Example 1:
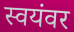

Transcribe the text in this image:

स्वयंवर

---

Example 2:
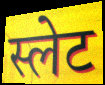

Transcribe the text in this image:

स्लेट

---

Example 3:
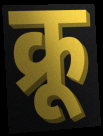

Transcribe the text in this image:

क्रू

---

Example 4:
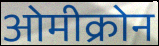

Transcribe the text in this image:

ओमीक्रोन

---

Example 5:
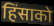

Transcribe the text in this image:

हिंसाको